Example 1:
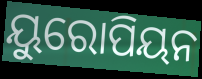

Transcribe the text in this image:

ୟୁରୋପିୟନ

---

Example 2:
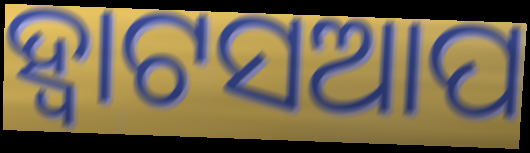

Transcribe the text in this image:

ହ୍ୱାଟସଆପ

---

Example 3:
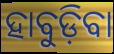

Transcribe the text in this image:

ହାବୁଡ଼ିବା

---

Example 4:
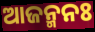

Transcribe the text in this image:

ଆଜନ୍ମନଃ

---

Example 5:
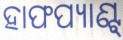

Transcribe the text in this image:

ହାଫପ୍ୟାଣ୍ଟ୍